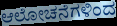
ಆಲೋಚನೆಗಳಿಂದ